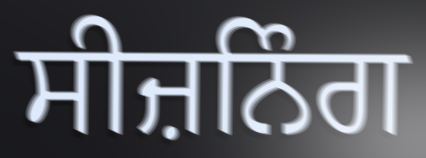
ਸੀਜ਼ਨਿੰਗ